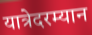
यात्रेदरम्यान